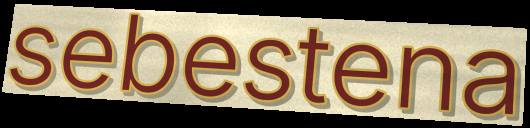
sebestena